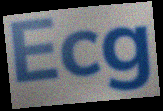
Ecg